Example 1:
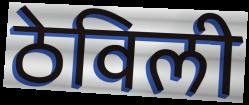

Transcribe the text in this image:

ठेविली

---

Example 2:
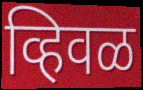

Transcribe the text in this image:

व्हिवळ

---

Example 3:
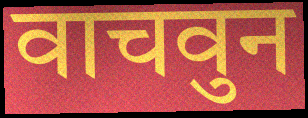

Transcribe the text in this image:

वाचवुन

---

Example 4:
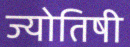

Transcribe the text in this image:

ज्योतिषी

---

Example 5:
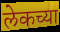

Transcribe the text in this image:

लेकच्या